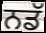
ਨਡੱ